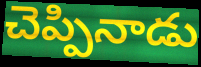
చెప్పినాడు